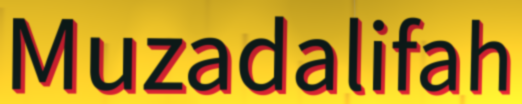
Muzadalifah